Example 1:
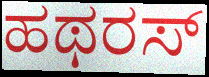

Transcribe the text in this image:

ಹಥರಸ್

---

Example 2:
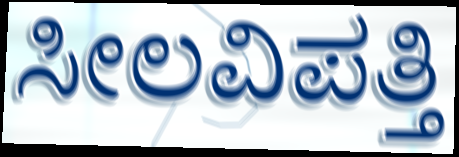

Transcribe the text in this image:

ಸೀಲವಿಪತ್ತಿ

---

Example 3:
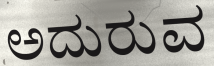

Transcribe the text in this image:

ಅದುರುವ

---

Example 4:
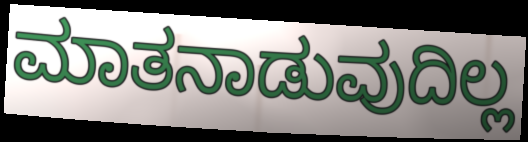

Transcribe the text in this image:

ಮಾತನಾಡುವುದಿಲ್ಲ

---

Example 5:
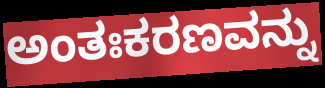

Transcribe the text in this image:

ಅಂತಃಕರಣವನ್ನು